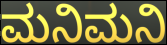
ಮನಿಮನಿ